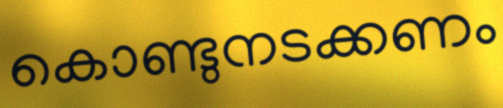
കൊണ്ടുനടക്കണം